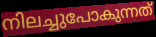
നിലച്ചുപോകുന്നത്